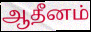
ஆதீனம்